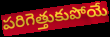
పరిగెత్తుకుపోయే